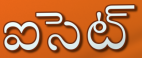
ఐసెట్